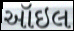
ઑઇલ